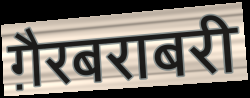
ग़ैरबराबरी